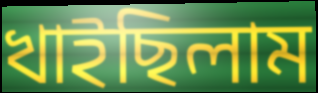
খাইছিলাম